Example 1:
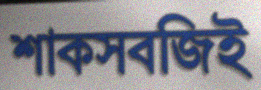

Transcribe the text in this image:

শাকসবজিই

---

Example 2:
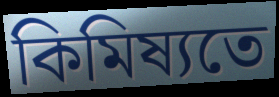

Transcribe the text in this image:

কিমিষ্যতে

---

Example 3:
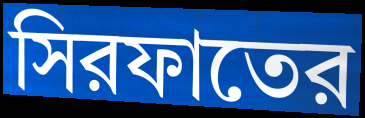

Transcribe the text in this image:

সিরফাতের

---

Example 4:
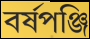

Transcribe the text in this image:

বর্ষপঞ্জি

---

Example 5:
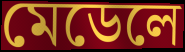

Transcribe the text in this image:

মেডেলে